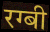
रग्बी